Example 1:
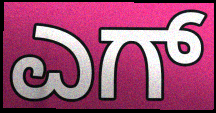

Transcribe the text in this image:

ಎಗ್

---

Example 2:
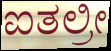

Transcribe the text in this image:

ಐತಲ್ರೀ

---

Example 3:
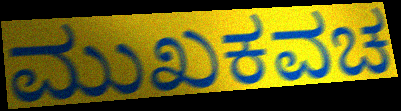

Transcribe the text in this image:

ಮುಖಕವಚ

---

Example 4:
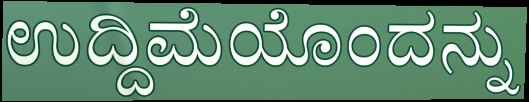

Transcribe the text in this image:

ಉದ್ದಿಮೆಯೊಂದನ್ನು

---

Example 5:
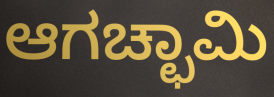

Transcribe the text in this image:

ಆಗಚ್ಛಾಮಿ